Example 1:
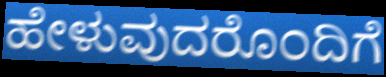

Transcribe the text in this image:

ಹೇಳುವುದರೊಂದಿಗೆ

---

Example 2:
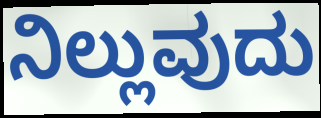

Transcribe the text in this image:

ನಿಲ್ಲುವುದು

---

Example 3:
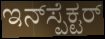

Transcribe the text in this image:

ಇನ್‌ಸ್ಪೆಕ್ಟರ್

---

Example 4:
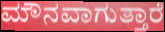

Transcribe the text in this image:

ಮೌನವಾಗುತ್ತಾರೆ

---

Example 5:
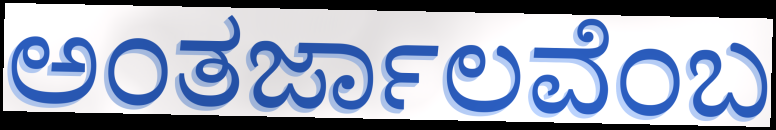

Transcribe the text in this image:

ಅಂತರ್ಜಾಲವೆಂಬ